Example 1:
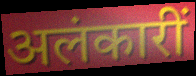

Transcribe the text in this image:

अलंकारीं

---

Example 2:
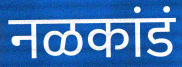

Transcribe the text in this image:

नळकांडं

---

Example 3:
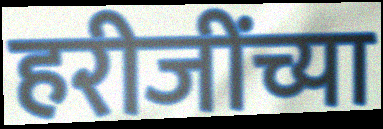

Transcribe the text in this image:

हरीजींच्या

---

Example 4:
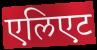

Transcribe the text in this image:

एलिएट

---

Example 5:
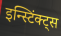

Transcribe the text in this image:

इन्स्टिंक्ट्स